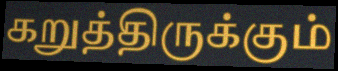
கறுத்திருக்கும்